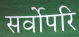
सर्वोपरि